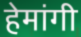
हेमांगी